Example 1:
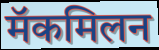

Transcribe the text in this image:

मॅकमिलन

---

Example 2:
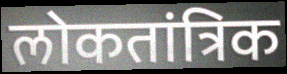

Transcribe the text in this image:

लोकतांत्रिक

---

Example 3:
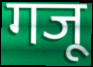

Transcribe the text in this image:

गजू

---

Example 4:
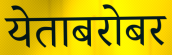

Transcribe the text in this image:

येताबरोबर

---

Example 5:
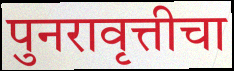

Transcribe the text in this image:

पुनरावृत्तीचा